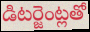
డిటర్జెంట్లతో